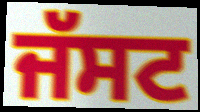
ਜੱਸਟ